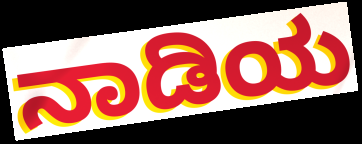
ನಾಡಿಯ